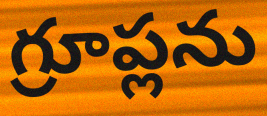
గ్రూప్లను